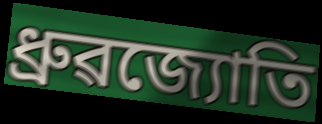
ধ্ৰুৱজ্যোতি